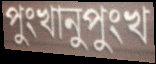
পুংখানুপুংখ